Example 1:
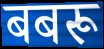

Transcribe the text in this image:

बबरू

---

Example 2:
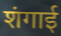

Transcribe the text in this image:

शंगाई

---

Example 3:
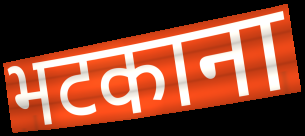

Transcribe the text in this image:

भटकाना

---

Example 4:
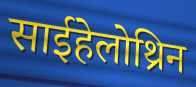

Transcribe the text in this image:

साईहेलोथ्रिन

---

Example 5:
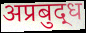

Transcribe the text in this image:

अप्रबुद्ध